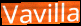
Vavilla